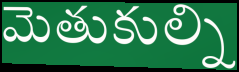
మెతుకుల్ని